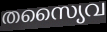
തസ്യൈവ